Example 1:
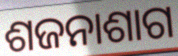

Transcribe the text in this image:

ଶଜନାଶାଗ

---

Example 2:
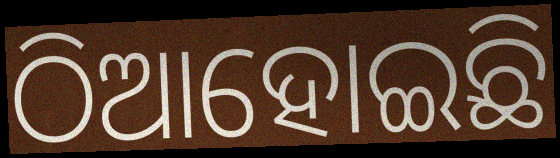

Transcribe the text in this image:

ଠିଆହୋଇଛି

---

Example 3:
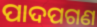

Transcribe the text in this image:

ପାଦପଗଣ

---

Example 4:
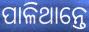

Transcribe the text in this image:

ପାଳିଥାନ୍ତେ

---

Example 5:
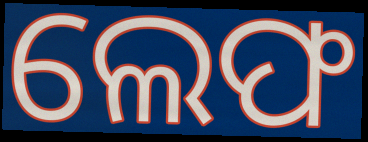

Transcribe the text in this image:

ଲେଫ